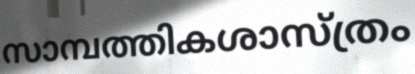
സാമ്പത്തികശാസ്ത്രം